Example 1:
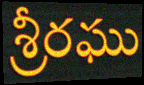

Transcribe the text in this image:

శ్రీరఘు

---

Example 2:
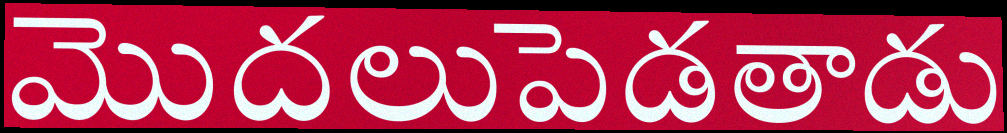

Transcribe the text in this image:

మొదలుపెడతాడు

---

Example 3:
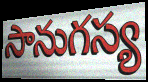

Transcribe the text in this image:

సానుగస్య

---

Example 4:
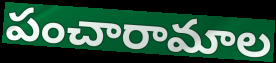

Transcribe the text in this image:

పంచారామాల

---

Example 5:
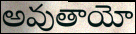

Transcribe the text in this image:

అవుతాయో